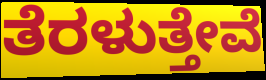
ತೆರಳುತ್ತೇವೆ